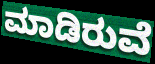
ಮಾಡಿರುವೆ